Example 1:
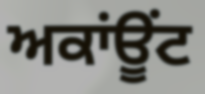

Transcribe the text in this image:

ਅਕਾਂਊਂਟ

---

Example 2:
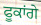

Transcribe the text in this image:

ਫੂਕਾਂਗੇ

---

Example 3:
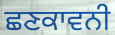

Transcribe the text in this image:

ਛਣਕਾਵਨੀ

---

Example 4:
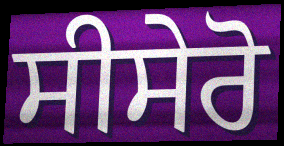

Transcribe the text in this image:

ਸੀਸੇਰੋ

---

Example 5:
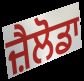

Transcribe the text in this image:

ਜ਼ੈਲੋਡਾ